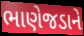
ભાણેજડાને